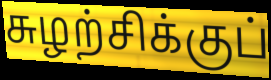
சுழற்சிக்குப்